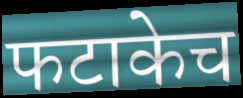
फटाकेच